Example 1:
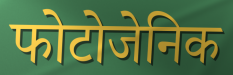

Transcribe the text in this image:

फोटोजेनिक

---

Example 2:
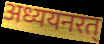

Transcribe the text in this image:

अध्ययनरत्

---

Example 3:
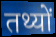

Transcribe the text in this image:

तथ्यों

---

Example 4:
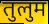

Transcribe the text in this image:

तुलुम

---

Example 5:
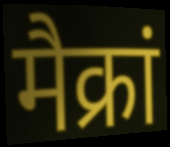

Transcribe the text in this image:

मैक्रां